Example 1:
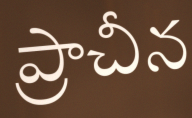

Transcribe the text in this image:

ప్రాచీన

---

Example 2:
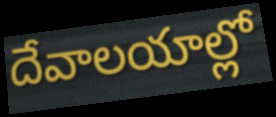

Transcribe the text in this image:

దేవాలయాల్లో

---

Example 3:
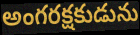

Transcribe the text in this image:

అంగరక్షకుడును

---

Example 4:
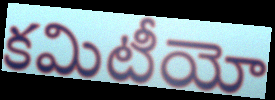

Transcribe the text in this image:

కమిటీయో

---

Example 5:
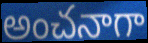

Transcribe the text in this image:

అంచనాగా